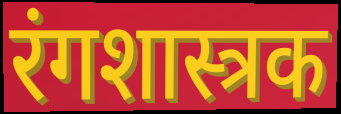
रंगशास्त्रक